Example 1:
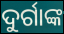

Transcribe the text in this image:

ଦୁର୍ଗାଙ୍କ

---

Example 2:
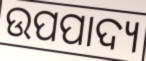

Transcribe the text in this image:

ଉପପାଦ୍ୟ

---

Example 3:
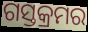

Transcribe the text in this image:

ଗସ୍ତକ୍ରମର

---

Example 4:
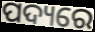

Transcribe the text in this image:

ପଦ୍ୟରେ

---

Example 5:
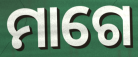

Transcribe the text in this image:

ମାଗେ